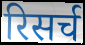
रिसर्च